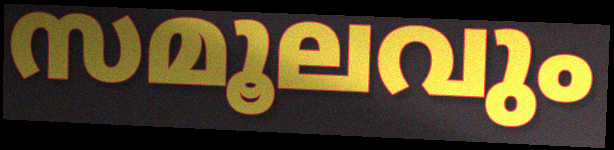
സമൂലവും